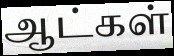
ஆட்கள்